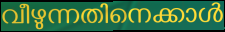
വീഴുന്നതിനെക്കാൾ